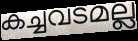
കച്ചവടമല്ല